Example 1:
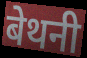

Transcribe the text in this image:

बेथनी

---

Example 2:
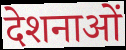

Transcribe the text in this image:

देशनाओं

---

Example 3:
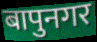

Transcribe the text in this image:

बापुनगर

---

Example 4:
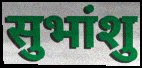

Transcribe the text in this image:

सुभांशु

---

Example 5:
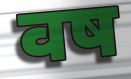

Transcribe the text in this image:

वष